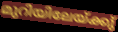
മുറിയിലേയ്ക്കു്